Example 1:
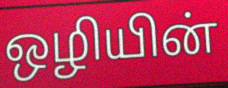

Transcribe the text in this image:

ஒழியின்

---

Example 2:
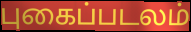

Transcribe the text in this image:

புகைப்படலம்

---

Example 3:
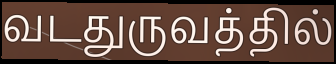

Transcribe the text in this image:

வடதுருவத்தில்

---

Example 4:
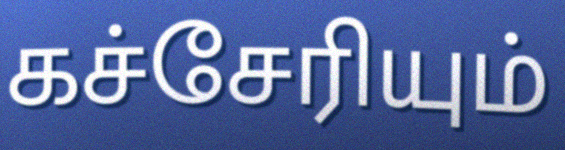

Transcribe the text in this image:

கச்சேரியும்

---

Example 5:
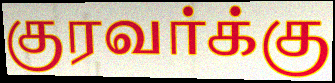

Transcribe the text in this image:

குரவர்க்கு